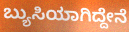
ಬ್ಯುಸಿಯಾಗಿದ್ದೇನೆ